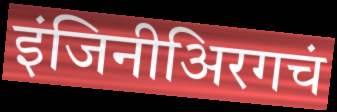
इंजिनीअिरगचं